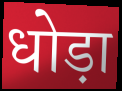
धोड़ा